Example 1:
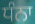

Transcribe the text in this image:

ਧੰਨਾ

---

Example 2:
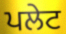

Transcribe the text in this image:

ਪਲੇਟ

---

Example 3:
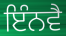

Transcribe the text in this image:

ਇੰਨਵੈ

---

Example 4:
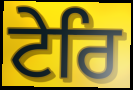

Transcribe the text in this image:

ਟੇਰਿ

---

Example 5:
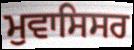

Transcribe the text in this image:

ਮੁਵਾਸਿਸਰ